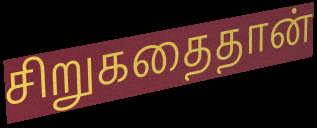
சிறுகதைதான்